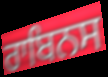
ਰਾਬਿਨਸ